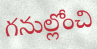
గనుల్లోంచి